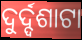
ଦୁର୍ଦ୍ଦଶାଟା